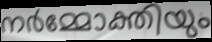
നർമ്മോക്തിയും